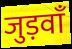
जुड़वाँ